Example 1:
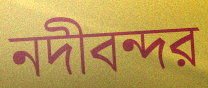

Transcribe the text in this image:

নদীবন্দর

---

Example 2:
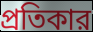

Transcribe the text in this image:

প্রতিকার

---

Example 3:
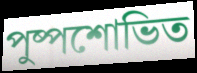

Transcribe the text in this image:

পুষ্পশোভিত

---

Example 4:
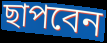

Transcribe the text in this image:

ছাপবেন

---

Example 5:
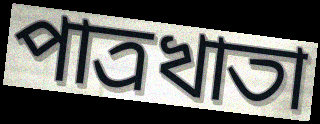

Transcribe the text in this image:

পাত্রখাতা